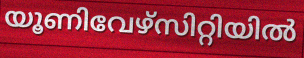
യൂണിവേഴ്സിറ്റിയിൽ